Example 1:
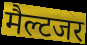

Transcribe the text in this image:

मैल्टजर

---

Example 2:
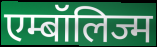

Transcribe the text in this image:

एम्बॉलिज्म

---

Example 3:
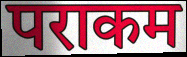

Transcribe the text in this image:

पराकम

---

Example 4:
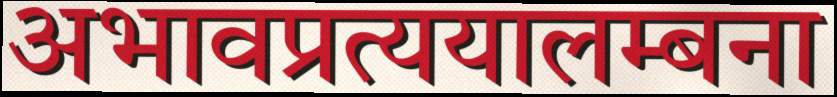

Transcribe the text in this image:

अभावप्रत्ययालम्बना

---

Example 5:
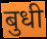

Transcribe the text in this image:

बुधी